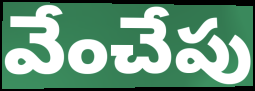
వేంచేపు